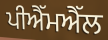
ਪੀਐੱਮਐੱਲ